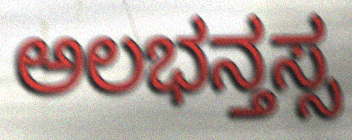
ಅಲಭನ್ತಸ್ಸ